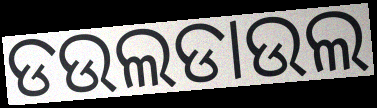
ଡଉଲଡାଉଲ